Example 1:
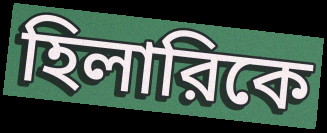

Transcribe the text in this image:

হিলারিকে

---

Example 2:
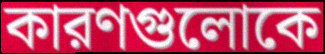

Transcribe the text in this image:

কারণগুলোকে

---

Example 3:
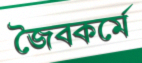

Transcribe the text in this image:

জৈবকর্মে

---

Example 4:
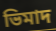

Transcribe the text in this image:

ভিমাদ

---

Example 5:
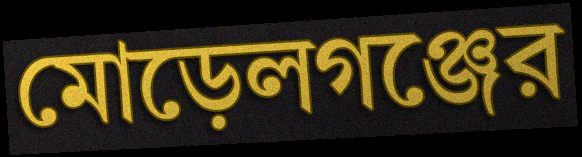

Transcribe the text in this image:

মোড়েলগঞ্জের